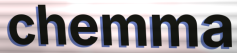
chemma